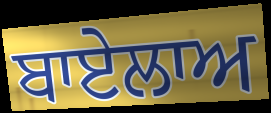
ਬਾਏਲਾਅ